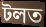
টলত